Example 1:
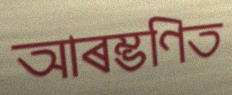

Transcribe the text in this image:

আৰম্ভণিত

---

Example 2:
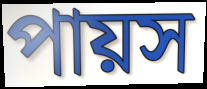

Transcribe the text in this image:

পায়স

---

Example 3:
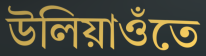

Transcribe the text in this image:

উলিয়াওঁতে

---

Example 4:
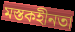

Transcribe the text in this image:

মস্তকহীনতা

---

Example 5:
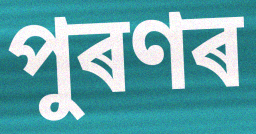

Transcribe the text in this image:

পুৰণৰ